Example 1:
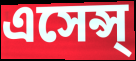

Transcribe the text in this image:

এসেন্স্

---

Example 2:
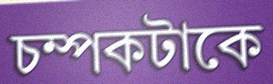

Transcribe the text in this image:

চম্পকটাকে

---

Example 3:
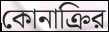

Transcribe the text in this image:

কোনাক্রির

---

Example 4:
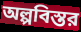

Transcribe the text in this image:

অল্পবিস্তর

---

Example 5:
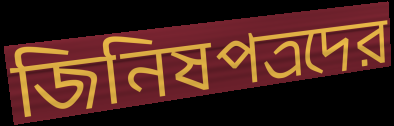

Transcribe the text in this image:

জিনিষপত্রদের